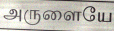
அருளையே